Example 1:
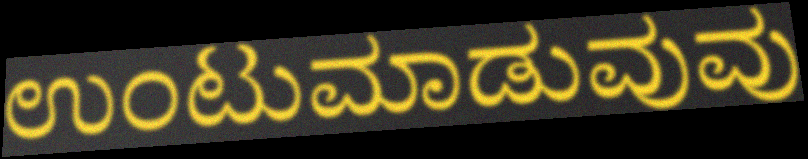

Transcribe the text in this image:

ಉಂಟುಮಾಡುವುವು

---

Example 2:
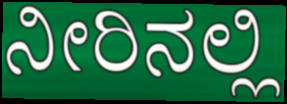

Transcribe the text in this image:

ನೀರಿನಲ್ಲಿ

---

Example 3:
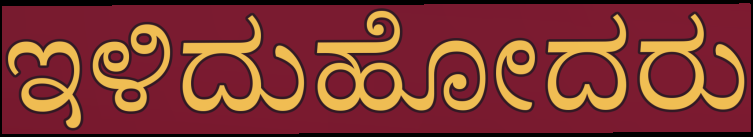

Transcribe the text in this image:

ಇಳಿದುಹೋದರು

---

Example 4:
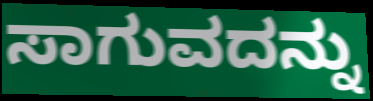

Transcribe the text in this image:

ಸಾಗುವದನ್ನು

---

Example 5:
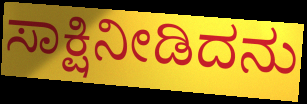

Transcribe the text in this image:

ಸಾಕ್ಷಿನೀಡಿದನು